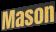
Mason